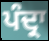
ਪੰਦ੍ਰਾ